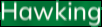
Hawking